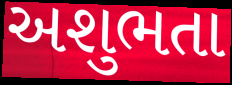
અશુભતા